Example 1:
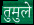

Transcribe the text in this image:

तुमुले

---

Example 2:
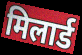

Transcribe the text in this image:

मिलार्ड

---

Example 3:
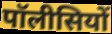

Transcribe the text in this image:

पॉलीसियों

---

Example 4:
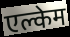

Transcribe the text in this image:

एल्केम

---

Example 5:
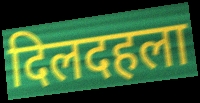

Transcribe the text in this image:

दिलदहला